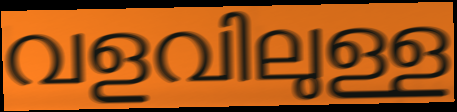
വളവിലുള്ള